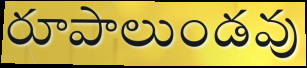
రూపాలుండవు